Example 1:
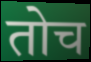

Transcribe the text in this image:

तोच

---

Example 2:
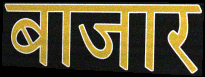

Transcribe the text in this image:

बाजार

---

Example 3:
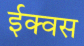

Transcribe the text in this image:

ईक्‍वस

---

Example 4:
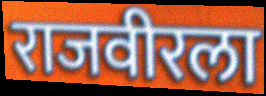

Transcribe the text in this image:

राजवीरला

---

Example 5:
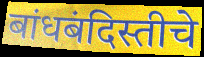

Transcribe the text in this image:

बांधबंदिस्तीचे